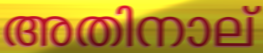
അതിനാല്